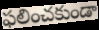
ఫలించకుండా